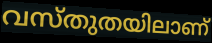
വസ്തുതയിലാണ്